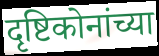
दृष्टिकोनांच्या